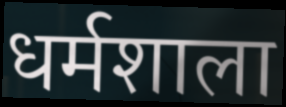
धर्मशाला